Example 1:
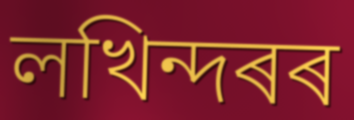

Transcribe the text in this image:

লখিন্দৰৰ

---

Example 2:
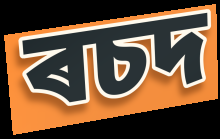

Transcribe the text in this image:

ৰচদ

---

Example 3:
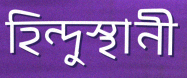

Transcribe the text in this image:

হিন্দুস্থানী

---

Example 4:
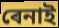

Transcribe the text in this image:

ৰেনাই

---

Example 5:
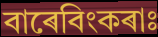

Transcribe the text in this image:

বাৰেবিংকৰাঃ